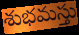
శుభమస్తు